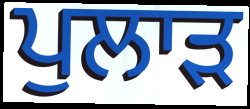
ਪੁਲਾੜ